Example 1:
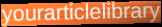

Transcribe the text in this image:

yourarticlelibrary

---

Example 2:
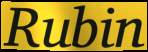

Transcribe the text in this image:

Rubin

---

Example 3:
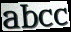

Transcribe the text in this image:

abcc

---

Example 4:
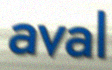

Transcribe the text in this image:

aval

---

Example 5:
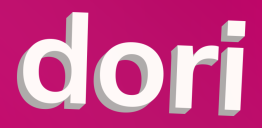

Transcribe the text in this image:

dori